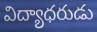
విద్యాధరుడు